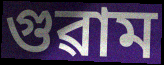
গুৱাম